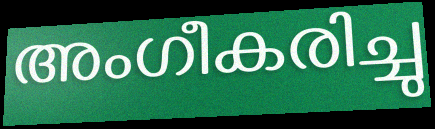
അംഗീകരിച്ചു